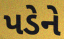
પડેને